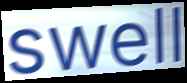
swell